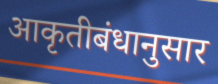
आकृतीबंधानुसार